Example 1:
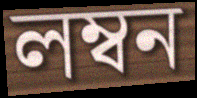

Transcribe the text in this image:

লম্বন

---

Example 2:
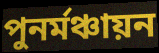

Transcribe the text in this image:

পুনর্মঞ্চায়ন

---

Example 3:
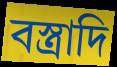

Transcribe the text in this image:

বস্ত্রাদি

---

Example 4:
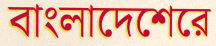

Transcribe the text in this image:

বাংলাদেশেরে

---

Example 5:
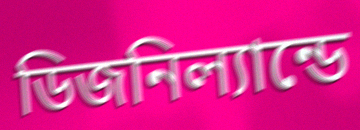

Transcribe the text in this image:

ডিজনিল্যান্ডে